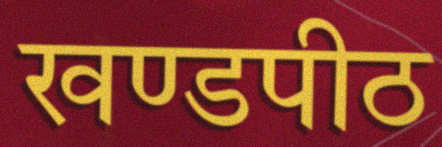
खण्डपीठ